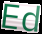
Ed